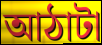
আঠাটা